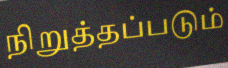
நிறுத்தப்படும்